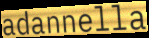
adannella